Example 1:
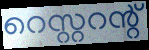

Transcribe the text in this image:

റെസ്റ്ററന്റ്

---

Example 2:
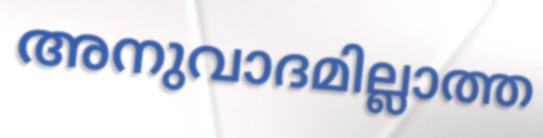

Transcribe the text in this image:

അനുവാദമില്ലാത്ത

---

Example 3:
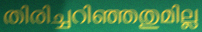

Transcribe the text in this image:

തിരിച്ചറിഞ്ഞതുമില്ല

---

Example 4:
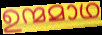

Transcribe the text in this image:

ഉന്മമാഥ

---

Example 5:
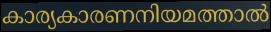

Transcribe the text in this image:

കാര്യകാരണനിയമത്താൽ